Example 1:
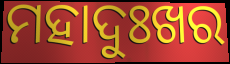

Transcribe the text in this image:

ମହାଦୁଃଖର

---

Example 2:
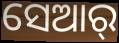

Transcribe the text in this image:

ସେଆର୍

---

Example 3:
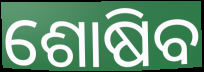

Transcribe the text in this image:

ଶୋଷିବ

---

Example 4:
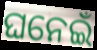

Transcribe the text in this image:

ଘନେଇଁ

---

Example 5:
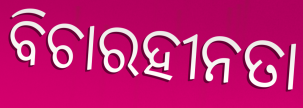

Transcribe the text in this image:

ବିଚାରହୀନତା